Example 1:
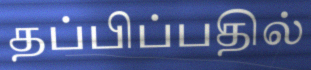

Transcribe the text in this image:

தப்பிப்பதில்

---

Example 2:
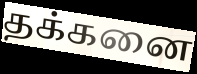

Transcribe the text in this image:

தக்கனை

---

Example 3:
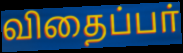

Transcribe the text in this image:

விதைப்பர்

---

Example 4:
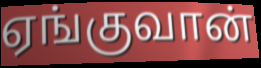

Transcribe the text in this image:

ஏங்குவான்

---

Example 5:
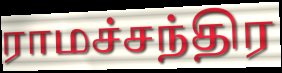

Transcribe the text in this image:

ராமச்சந்திர